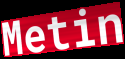
Metin